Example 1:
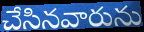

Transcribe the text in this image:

చేసినవారును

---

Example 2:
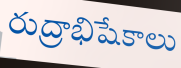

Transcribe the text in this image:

రుద్రాభిషేకాలు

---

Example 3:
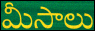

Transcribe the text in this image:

మీసాలు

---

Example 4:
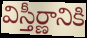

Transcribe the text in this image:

విస్తీర్ణానికి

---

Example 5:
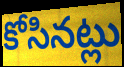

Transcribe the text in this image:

కోసినట్లు